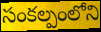
సంకల్పంలోని